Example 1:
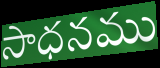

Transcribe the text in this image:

సాధనము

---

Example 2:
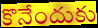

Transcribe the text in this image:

కొనేందుకు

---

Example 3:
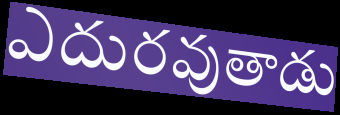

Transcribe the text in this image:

ఎదురవుతాడు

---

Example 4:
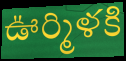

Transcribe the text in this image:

ఊర్మిళకి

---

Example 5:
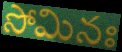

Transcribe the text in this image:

సోమినః